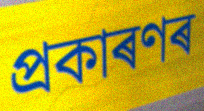
প্ৰকাৰণৰ